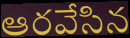
ఆరవేసిన